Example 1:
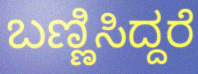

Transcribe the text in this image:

ಬಣ್ಣಿಸಿದ್ದರೆ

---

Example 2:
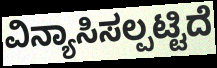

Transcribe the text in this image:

ವಿನ್ಯಾಸಿಸಲ್ಪಟ್ಟಿದೆ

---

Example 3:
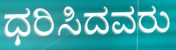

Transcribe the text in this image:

ಧರಿಸಿದವರು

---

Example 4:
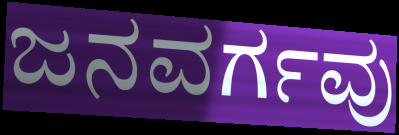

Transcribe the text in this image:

ಜನವರ್ಗವು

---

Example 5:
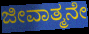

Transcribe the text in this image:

ಜೀವಾತ್ಮನೇ